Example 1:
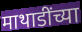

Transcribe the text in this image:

माथाडींच्या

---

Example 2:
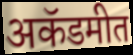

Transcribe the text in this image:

अकॅडमीत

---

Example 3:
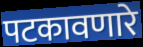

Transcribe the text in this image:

पटकावणारे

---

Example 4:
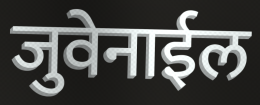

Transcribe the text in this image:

जुवेनाईल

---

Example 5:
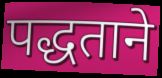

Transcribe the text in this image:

पद्धताने